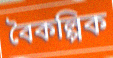
বৈকল্পিক